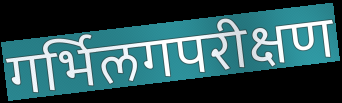
गर्भिलगपरीक्षण